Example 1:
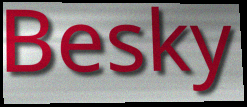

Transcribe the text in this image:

Besky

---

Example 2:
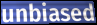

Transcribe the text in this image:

unbiased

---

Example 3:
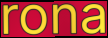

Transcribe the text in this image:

rona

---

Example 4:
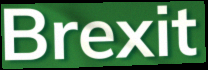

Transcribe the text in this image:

Brexit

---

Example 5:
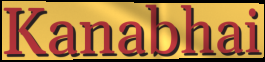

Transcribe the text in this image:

Kanabhai